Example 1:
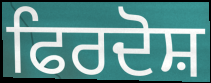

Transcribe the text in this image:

ਫਿਰਦੋਸ਼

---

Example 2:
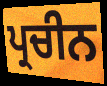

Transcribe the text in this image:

ਪ੍ਰਚੀਨ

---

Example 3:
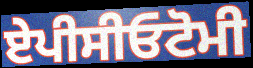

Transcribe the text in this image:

ਏਪੀਸੀਓਟੋਮੀ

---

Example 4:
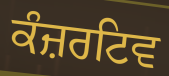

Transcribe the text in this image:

ਕੰਜ਼ਰਟਿਵ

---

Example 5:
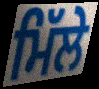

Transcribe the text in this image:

ਮਿੱਲੇ